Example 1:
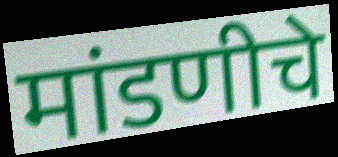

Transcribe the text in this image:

मांडणीचे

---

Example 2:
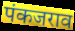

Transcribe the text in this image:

पंकजराव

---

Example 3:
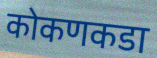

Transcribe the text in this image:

कोकणकडा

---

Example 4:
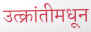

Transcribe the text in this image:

उत्क्रांतीमधून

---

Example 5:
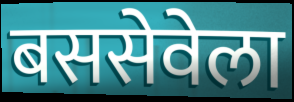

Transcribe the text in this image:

बससेवेला